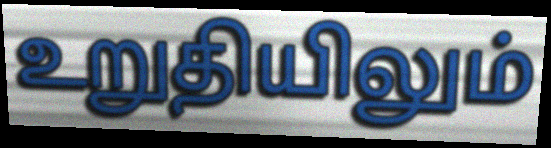
உறுதியிலும்